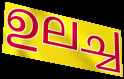
ഉലച്ച